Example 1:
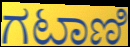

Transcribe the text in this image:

ಗಟಾಣಿ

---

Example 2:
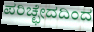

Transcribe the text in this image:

ಪರಿಚ್ಛೇದದಿಂದ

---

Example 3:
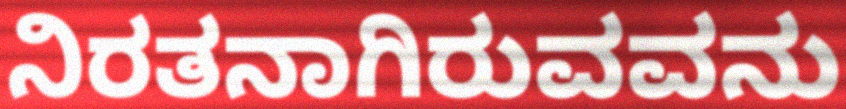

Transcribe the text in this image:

ನಿರತನಾಗಿರುವವನು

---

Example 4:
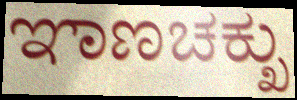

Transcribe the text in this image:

ಞಾಣಚಕ್ಖು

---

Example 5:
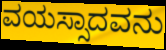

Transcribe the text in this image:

ವಯಸ್ಸಾದವನು